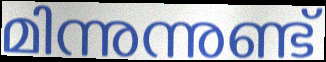
മിന്നുന്നുണ്ട്